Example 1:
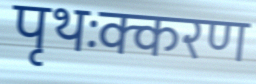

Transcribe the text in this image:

पृथःक्करण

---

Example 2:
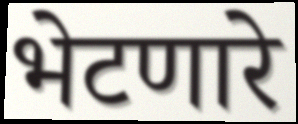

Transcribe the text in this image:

भेटणारे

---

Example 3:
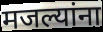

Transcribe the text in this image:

मजल्यांना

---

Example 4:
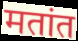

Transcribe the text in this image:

मतांत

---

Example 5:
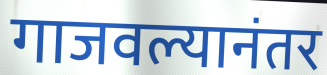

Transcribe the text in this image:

गाजवल्यानंतर